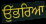
ਉੱਭਰਿਆ